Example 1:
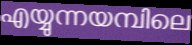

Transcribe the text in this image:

എയ്യുന്നയമ്പിലെ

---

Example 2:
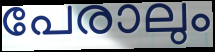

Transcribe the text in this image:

പേരാലും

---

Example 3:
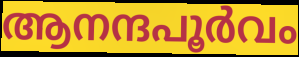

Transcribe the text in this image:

ആനന്ദപൂർവം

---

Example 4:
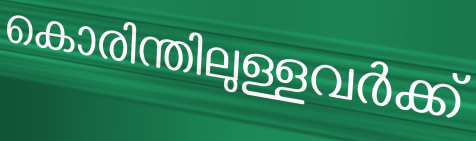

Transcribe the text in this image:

കൊരിന്തിലുള്ളവർക്ക്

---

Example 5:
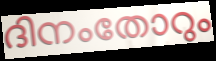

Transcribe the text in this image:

ദിനംതോറും